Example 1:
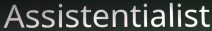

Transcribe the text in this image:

Assistentialist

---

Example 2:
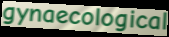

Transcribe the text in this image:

gynaecological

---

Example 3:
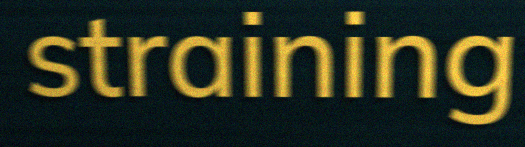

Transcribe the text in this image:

straining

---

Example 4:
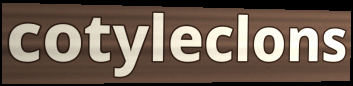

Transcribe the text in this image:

cotyleclons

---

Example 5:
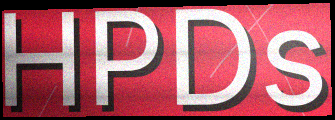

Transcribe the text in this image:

HPDs